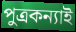
পুত্রকন্যাই